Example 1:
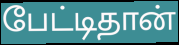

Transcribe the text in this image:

பேட்டிதான்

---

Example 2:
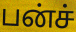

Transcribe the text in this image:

பன்ச்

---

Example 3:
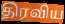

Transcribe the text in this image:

திரவிய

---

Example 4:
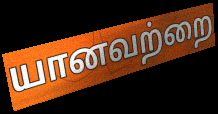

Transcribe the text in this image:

யானவற்றை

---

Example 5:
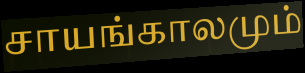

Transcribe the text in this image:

சாயங்காலமும்